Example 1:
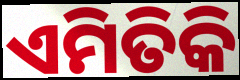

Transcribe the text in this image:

ଏମିତିକି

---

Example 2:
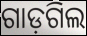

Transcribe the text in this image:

ଗାଡ଼ଗିଲ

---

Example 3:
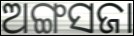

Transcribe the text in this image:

ଅଙ୍ଗସଜା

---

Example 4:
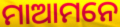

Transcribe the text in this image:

ମାଆମନେ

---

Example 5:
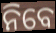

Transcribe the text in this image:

ନିବେ